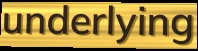
underlying